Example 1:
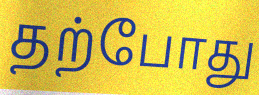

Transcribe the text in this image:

தற்போது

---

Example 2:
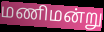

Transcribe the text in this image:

மணிமன்று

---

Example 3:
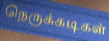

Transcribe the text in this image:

நெருக்கடிகள்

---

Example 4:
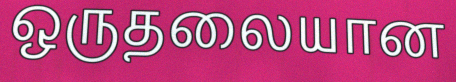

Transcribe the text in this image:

ஒருதலையான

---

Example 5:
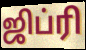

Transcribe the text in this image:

ஜிப்ரி